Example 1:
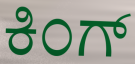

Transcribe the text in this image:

ಕಿಂಗ್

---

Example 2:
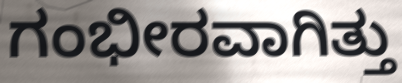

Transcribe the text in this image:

ಗಂಭೀರವಾಗಿತ್ತು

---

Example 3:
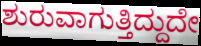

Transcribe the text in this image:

ಶುರುವಾಗುತ್ತಿದ್ದುದೇ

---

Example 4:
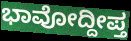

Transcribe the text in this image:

ಭಾವೋದ್ದೀಪ್ತ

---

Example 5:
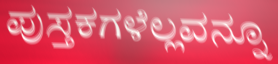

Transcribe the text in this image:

ಪುಸ್ತಕಗಳೆಲ್ಲವನ್ನೂ